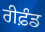
ਰੀਫ਼ੰਡ